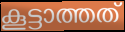
കൂട്ടാത്തത്